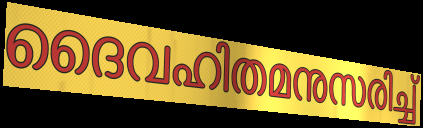
ദൈവഹിതമനുസരിച്ച്